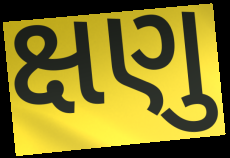
ક્ષણુ